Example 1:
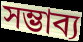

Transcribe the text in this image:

সম্ভাব্য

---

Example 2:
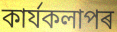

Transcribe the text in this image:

কাৰ্যকলাপৰ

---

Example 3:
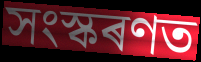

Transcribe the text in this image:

সংস্কৰণত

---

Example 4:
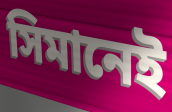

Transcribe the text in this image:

সিমানেই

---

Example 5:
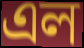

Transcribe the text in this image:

এল